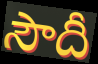
సౌదీ